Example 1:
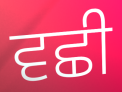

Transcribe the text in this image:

ਵਛੀ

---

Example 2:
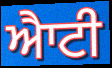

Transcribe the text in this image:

ਐਾਟੀ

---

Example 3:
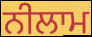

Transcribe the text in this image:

ਨੀਲਾਮ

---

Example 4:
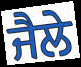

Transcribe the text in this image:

ਜੈਲੇ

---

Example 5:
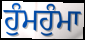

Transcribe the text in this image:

ਹੁੰਮਹੁੰਮਾ